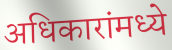
अधिकारांमध्ये